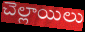
చెల్లాయిలు